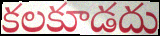
కలకూడదు